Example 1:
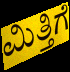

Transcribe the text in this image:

ಮಿತ್ತಿಗೆ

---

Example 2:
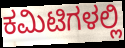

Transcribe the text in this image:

ಕಮಿಟಿಗಳಲ್ಲಿ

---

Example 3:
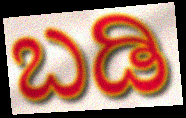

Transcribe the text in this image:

ಬಡಿ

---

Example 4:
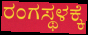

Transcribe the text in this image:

ರಂಗಸ್ಥಳಕ್ಕೆ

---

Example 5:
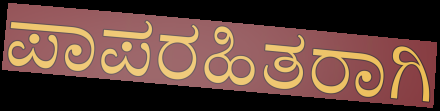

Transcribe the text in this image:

ಪಾಪರಹಿತರಾಗಿ